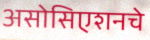
असोसिएशनचे